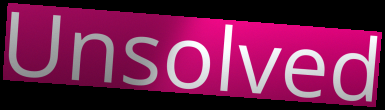
Unsolved